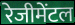
रेजीमेंटल